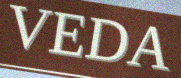
VEDA